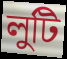
লুটি